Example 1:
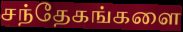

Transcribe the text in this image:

சந்தேகங்களை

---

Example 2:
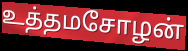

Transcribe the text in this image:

உத்தமசோழன்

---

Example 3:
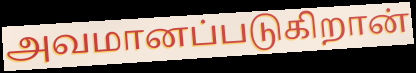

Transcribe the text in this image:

அவமானப்படுகிறான்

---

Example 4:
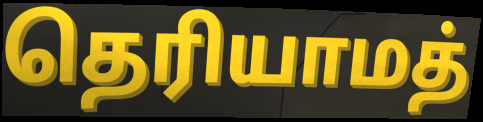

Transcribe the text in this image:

தெரியாமத்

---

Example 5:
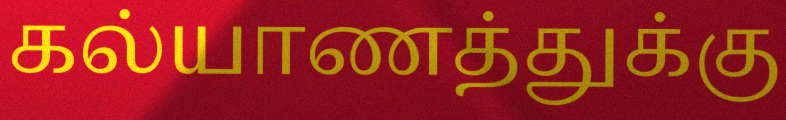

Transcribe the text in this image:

கல்யாணத்துக்கு